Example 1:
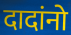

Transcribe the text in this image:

दादांनो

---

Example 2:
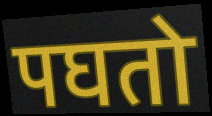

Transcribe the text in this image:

पघतो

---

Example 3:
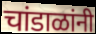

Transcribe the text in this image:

चांडाळांनी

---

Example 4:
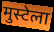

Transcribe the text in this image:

मुस्टेला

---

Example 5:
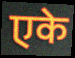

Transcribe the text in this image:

एके